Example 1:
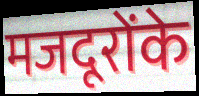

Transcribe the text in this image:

मजदूरोंके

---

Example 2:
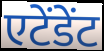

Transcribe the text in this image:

एटेंडेंट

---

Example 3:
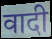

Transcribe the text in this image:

वादी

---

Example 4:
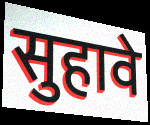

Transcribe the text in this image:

सुहावे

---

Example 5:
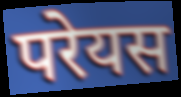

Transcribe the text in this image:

परेयस